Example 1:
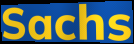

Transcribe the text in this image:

Sachs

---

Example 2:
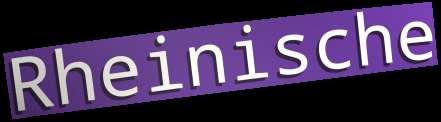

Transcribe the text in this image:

Rheinische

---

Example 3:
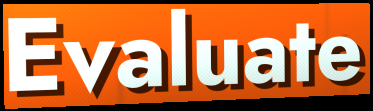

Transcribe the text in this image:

Evaluate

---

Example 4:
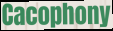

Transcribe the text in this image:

Cacophony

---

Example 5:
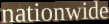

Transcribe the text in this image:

nationwide